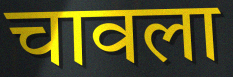
चावला